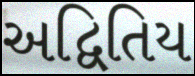
અદ્વિતિય